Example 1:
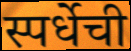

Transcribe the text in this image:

स्पर्धेची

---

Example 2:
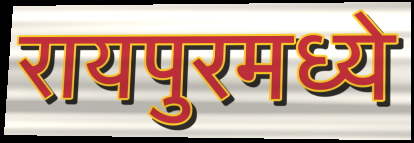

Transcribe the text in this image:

रायपुरमध्ये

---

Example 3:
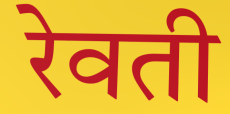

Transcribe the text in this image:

रेवती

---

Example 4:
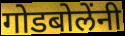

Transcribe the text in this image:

गोडबोलेंनी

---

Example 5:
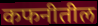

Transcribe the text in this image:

कफनीतील